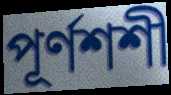
পূর্ণশশী